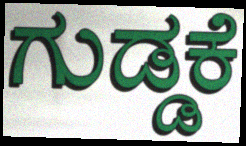
ಗುಡ್ಡಕೆ